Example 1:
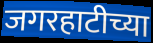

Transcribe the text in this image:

जगरहाटीच्या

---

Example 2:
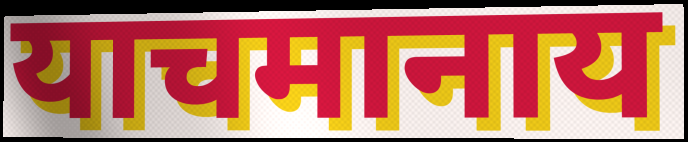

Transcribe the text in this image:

याचमानाय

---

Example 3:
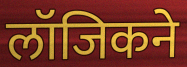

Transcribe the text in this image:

लॉजिकने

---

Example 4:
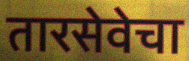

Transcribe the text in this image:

तारसेवेचा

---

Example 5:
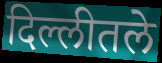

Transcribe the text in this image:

दिल्लीतले